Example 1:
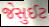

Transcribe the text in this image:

જેસુઈટ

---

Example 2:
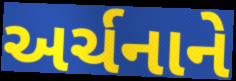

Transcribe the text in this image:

અર્ચનાને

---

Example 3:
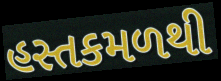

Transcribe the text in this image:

હસ્તકમળથી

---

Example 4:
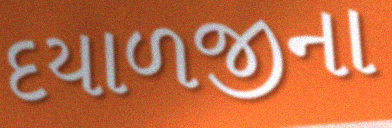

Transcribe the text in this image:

દયાળજીના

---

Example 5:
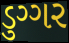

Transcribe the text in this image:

ડુગ્ગર